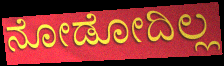
ನೋಡೋದಿಲ್ಲ